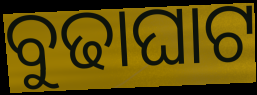
ବୁଢାଘାଟ